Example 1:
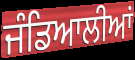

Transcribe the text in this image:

ਜੰਡਿਆਲੀਆਂ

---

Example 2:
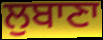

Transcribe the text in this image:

ਲੁਬਾਣਾ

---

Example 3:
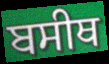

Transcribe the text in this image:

ਬਸੀਥ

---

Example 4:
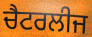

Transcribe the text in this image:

ਚੈਟਰਲੀਜ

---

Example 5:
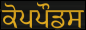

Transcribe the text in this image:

ਕੋਪਪੌਡਸ